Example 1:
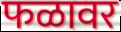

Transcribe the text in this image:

फळावर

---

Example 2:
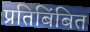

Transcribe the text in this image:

प्रतिबिंबित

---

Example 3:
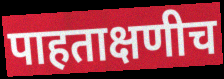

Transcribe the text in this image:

पाहताक्षणीच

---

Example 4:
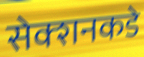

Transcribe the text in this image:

सेक्शनकडे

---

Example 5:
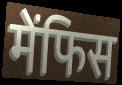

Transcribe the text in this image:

मेंफिस